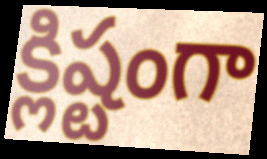
క్లిష్టంగా